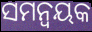
ସମନ୍ୱୟକ